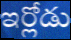
ఇర్లోడు